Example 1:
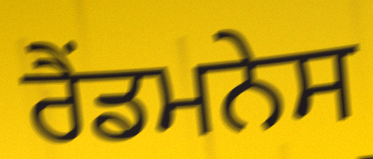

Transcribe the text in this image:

ਰੈਂਡਮਨੇਸ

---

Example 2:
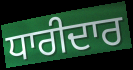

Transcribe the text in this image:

ਧਾਰੀਦਾਰ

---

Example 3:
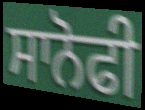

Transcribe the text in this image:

ਸਾਨੋਫੀ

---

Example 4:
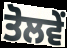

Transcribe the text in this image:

ਤੋਲਵੇਂ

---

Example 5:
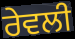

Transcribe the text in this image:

ਰੇਵਲੀ